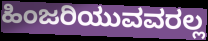
ಹಿಂಜರಿಯುವವರಲ್ಲ